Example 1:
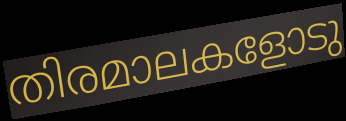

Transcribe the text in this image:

തിരമാലകളോടു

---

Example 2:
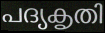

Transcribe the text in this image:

പദ്യകൃതി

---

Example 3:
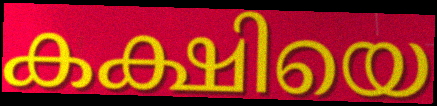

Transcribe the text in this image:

കക്ഷിയെ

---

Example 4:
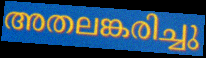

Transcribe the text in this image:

അതലങ്കരിച്ചു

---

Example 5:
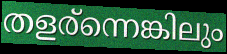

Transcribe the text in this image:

തളര്ന്നെങ്കിലും